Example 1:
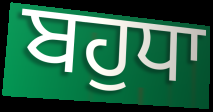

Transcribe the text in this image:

ਬਹੁਧਾ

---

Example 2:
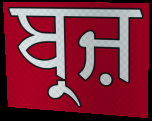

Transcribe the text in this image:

ਬ੍ਰਜ਼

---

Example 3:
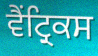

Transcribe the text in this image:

ਵੈਂਟ੍ਰਿਕਸ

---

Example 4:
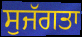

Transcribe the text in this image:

ਸੁਜੱਗਤਾ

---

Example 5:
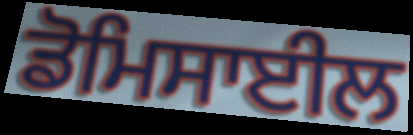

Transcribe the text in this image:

ਡੋਮਿਸਾਈਲ